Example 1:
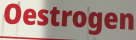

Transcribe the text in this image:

Oestrogen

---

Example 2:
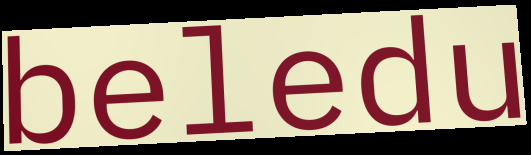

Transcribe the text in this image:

beledu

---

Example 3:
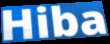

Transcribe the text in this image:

Hiba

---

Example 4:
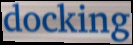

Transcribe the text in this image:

docking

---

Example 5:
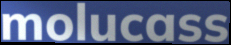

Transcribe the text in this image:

molucass